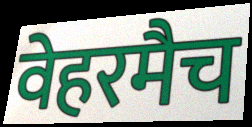
वेहरमैच